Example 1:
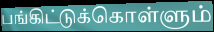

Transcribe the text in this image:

பங்கிட்டுக்கொள்ளும்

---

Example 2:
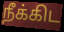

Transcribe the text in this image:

நீக்கிட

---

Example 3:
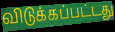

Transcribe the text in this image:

விடுக்கப்பட்டது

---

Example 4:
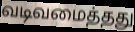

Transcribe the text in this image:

வடிவமைத்தது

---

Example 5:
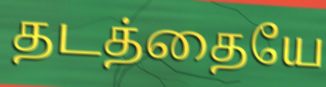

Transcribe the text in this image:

தடத்தையே